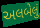
અલબેલું